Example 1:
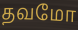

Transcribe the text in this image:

தவமோ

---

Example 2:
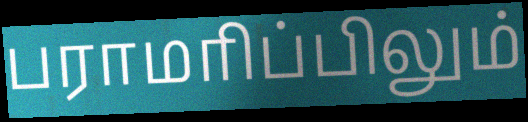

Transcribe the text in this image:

பராமரிப்பிலும்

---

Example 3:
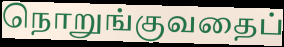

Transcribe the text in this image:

நொறுங்குவதைப்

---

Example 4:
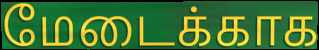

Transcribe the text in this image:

மேடைக்காக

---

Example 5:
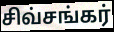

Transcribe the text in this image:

சிவ்சங்கர்